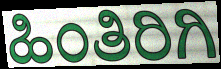
ಹಿಂತಿರಿಗಿ